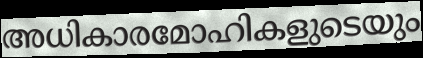
അധികാരമോഹികളുടെയും